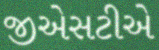
જીએસટીએ